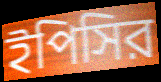
ইপিসির